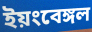
ইয়ংবেঙ্গল